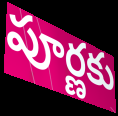
పూర్ణకు